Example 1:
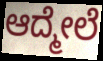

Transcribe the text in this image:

ಆದ್ಮೇಲೆ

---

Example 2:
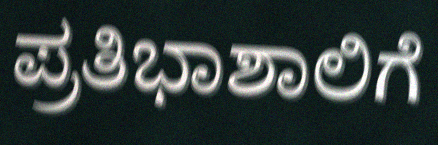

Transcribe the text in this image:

ಪ್ರತಿಭಾಶಾಲಿಗೆ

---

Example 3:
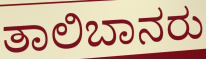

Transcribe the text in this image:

ತಾಲಿಬಾನರು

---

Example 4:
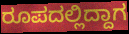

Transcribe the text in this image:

ರೂಪದಲ್ಲಿದ್ದಾಗ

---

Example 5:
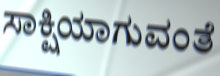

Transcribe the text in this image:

ಸಾಕ್ಷಿಯಾಗುವಂತೆ